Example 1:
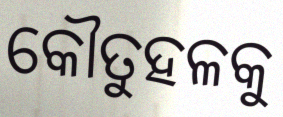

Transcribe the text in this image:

କୌତୁହଳକୁ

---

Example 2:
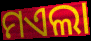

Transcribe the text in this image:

ମଏଲା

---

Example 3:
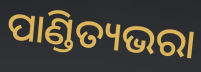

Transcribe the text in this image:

ପାଣ୍ଡିତ୍ୟଭରା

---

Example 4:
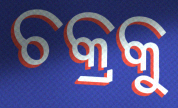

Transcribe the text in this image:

ଚକ୍ରକୁ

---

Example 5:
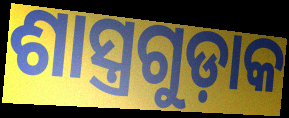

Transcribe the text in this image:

ଶାସ୍ତ୍ରଗୁଡ଼ାକ